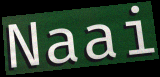
Naai